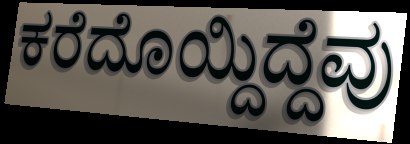
ಕರೆದೊಯ್ದಿದ್ದೆವು